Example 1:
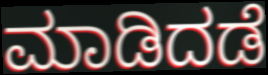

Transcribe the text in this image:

ಮಾಡಿದಡೆ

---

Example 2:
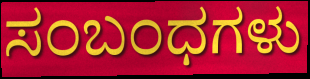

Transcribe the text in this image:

ಸಂಬಂಧಗಳು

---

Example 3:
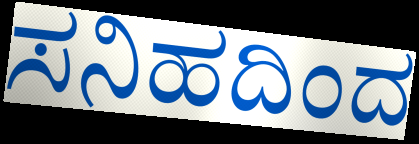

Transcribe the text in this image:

ಸನಿಹದಿಂದ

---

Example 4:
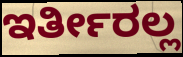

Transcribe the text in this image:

ಇರ್ತೀರಲ್ಲ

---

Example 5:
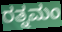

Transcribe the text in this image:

ರತ್ನಮಂ